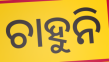
ଚାହୁନି